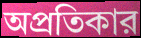
অপ্রতিকার